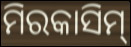
ମିରକାସିମ୍